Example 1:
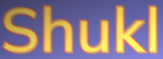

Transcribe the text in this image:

Shukl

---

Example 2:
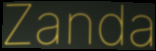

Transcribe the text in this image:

Zanda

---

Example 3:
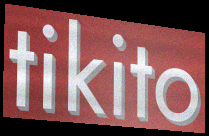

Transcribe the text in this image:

tikito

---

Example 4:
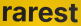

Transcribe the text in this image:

rarest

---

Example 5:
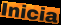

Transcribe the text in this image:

Inicia